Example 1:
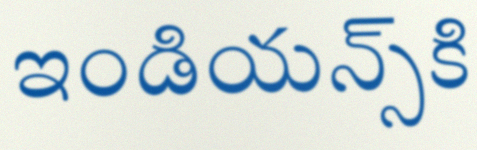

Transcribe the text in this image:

ఇండియన్స్‌కి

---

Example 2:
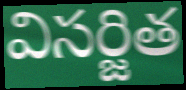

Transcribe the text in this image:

విసర్జిత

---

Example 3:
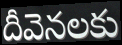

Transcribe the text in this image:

దీవెనలకు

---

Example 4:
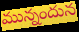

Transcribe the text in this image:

మున్నందున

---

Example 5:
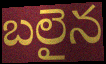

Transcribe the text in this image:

బలైన